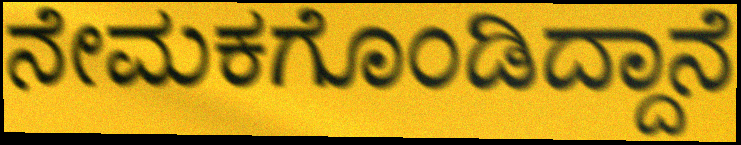
ನೇಮಕಗೊಂಡಿದ್ದಾನೆ